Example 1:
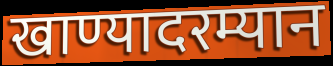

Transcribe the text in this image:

खाण्यादरम्यान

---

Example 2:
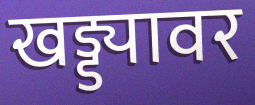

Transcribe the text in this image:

खड्ड्यावर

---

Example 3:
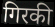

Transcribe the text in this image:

गिरकी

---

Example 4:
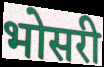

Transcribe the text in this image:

भोसरी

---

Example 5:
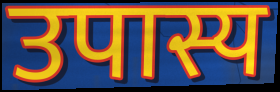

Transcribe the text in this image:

उपास्य